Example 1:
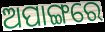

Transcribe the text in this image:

ଅପାଙ୍ଗରେ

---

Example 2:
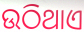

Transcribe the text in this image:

ଉଠିଥାଏ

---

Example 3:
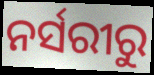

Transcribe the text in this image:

ନର୍ସରୀରୁ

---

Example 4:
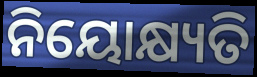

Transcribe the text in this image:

ନିୟୋକ୍ଷ୍ୟତି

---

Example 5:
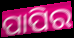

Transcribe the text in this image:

ପାପିର